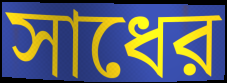
সাধের